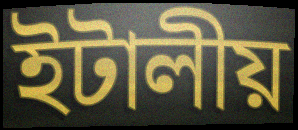
ইটালীয়